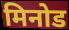
मिनोड